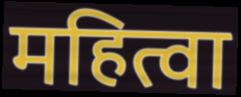
महित्वा